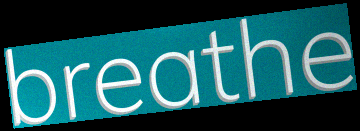
breathe